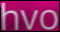
hvo